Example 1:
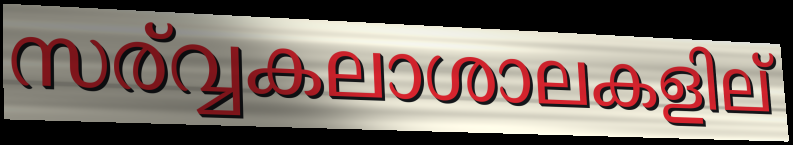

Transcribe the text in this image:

സര്വ്വകലാശാലകളില്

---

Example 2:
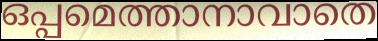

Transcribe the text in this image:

ഒപ്പമെത്താനാവാതെ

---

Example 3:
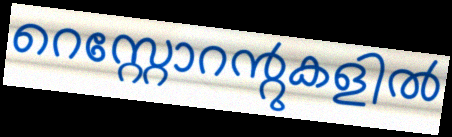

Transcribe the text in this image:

റെസ്റ്റോറന്റുകളിൽ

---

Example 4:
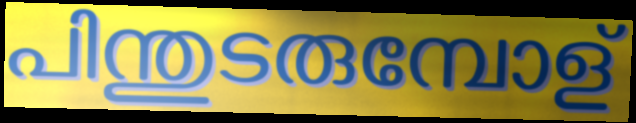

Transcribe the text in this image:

പിന്തുടരുമ്പോള്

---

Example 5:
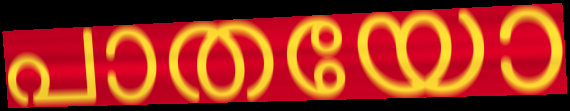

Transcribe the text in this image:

പാതയോ